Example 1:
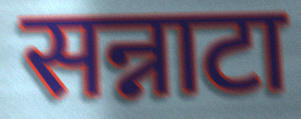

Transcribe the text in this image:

सन्नाटा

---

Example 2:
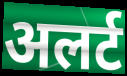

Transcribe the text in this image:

अलर्ट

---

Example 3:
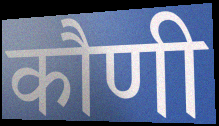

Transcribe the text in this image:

कौणी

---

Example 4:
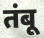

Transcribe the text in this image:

तंबू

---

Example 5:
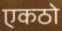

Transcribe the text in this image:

एकठो